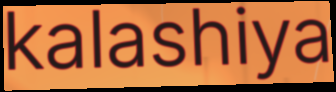
kalashiya